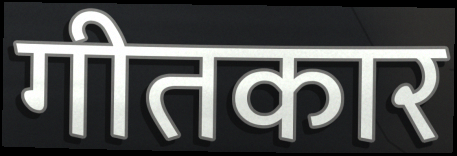
गीतकार